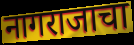
नागराजाचा